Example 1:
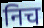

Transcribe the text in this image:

निच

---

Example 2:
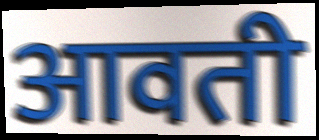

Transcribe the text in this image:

आवती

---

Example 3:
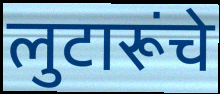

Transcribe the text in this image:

लुटारूंचे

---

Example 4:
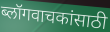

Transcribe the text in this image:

ब्लॉगवाचकांसाठी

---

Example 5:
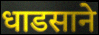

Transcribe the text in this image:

धाडसाने